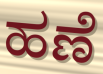
ಹಣೆ